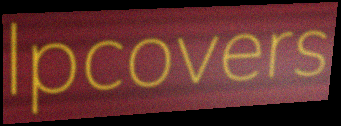
lpcovers